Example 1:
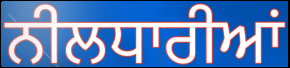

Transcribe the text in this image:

ਨੀਲਧਾਰੀਆਂ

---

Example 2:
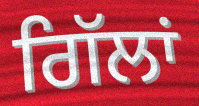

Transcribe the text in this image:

ਗਿੱਲਾਂ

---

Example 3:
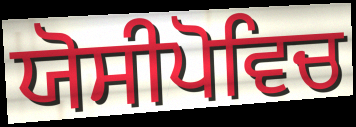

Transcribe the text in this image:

ਯੋਸੀਪੋਵਿਚ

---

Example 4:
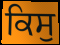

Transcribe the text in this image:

ਕਿਸੁ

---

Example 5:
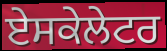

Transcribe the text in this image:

ਏਸਕੇਲੇਟਰ